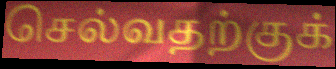
செல்வதற்குக்